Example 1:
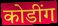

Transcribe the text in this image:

कोडींग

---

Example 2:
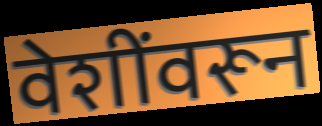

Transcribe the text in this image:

वेशींवरून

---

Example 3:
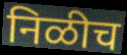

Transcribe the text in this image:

निळीच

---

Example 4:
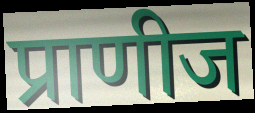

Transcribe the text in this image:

प्राणीज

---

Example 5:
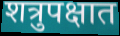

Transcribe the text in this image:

शत्रुपक्षात